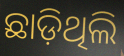
ଛାଡ଼ିଥିଲି